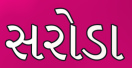
સરોડા